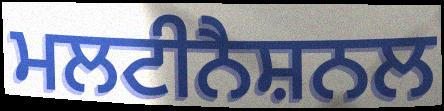
ਮਲਟੀਨੈਸ਼ਨਲ